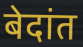
बेदांत